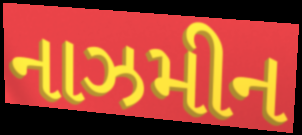
નાઝમીન